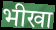
भीखा